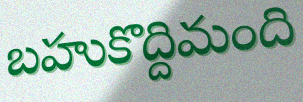
బహుకొద్దిమంది